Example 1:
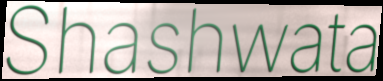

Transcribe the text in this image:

Shashwata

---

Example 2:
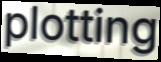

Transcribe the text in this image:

plotting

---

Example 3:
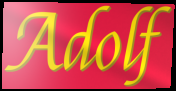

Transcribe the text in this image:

Adolf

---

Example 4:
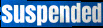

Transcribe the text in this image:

suspended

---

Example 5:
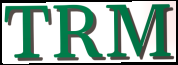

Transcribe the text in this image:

TRM